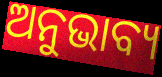
ଅନୁଭାବ୍ୟ